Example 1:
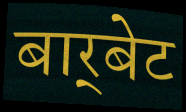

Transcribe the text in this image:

बार्बेट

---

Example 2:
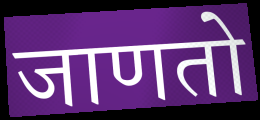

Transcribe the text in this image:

जाणतो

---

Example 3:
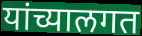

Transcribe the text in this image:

यांच्यालगत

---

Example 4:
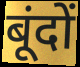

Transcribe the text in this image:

बूंदों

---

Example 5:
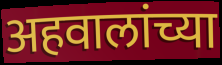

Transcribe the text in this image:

अहवालांच्या